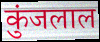
कुंजलाल